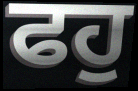
ਫਹੁ